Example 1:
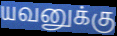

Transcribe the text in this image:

யவனுக்கு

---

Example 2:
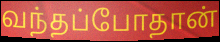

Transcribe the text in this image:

வந்தப்போதான்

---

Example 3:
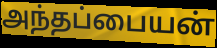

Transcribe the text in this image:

அந்தப்பையன்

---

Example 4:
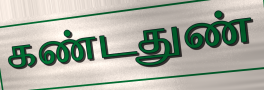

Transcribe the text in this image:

கண்டதுண்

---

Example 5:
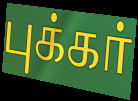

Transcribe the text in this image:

புக்கர்